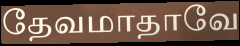
தேவமாதாவே